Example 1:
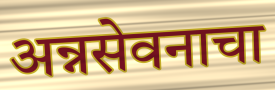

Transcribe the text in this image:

अन्नसेवनाचा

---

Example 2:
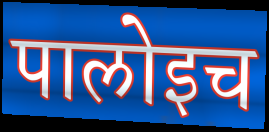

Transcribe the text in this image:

पालोइच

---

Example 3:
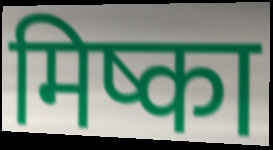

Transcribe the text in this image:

मिष्का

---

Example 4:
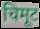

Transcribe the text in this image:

चिमूट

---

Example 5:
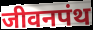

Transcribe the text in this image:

जीवनपंथ